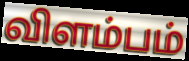
விளம்பம்